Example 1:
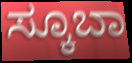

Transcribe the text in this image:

ಸ್ಕೂಬಾ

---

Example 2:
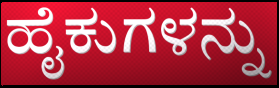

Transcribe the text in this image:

ಹೈಕುಗಳನ್ನು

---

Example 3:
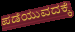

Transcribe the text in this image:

ಪಡೆಯುವದಕ್ಕೆ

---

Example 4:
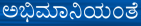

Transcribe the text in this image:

ಅಭಿಮಾನಿಯಂತೆ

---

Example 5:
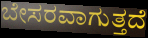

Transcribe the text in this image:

ಬೇಸರವಾಗುತ್ತದೆ